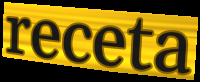
receta